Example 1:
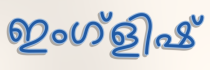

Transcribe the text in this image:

ഇംഗ്ളിഷ്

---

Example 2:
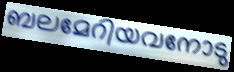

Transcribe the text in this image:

ബലമേറിയവനോടു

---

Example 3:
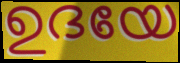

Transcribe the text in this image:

ഉദയേ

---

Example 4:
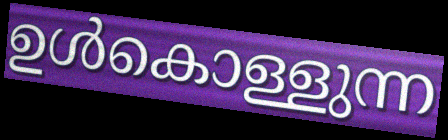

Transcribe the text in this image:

ഉൾകൊള്ളുന്ന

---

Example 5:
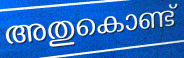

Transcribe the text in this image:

അതുകൊണ്ട്